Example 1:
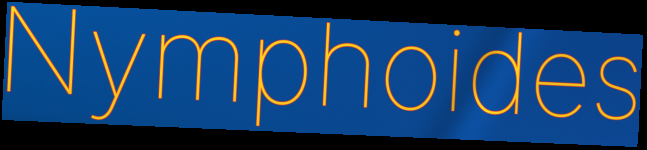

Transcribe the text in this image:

Nymphoides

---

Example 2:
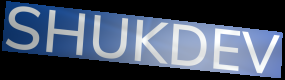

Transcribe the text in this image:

SHUKDEV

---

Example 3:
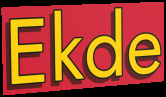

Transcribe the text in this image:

Ekde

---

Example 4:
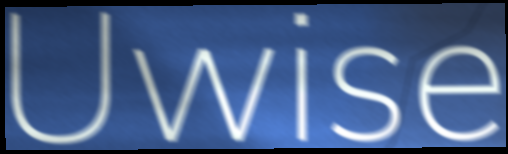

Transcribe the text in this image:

Uwise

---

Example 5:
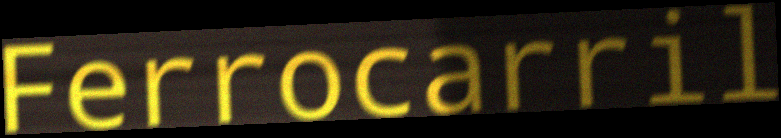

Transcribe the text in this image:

Ferrocarril